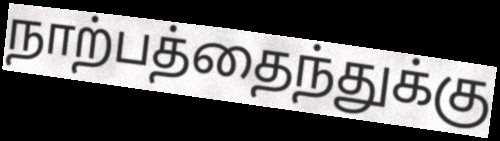
நாற்பத்தைந்துக்கு